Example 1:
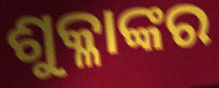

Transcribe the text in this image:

ଶୁକ୍ଳାଙ୍କର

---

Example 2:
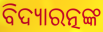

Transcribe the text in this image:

ବିଦ୍ୟାରତ୍ନଙ୍କ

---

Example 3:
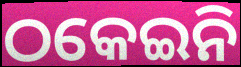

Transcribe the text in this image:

ଠକେଇନି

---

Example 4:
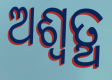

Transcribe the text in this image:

ଅଶ୍ଵତ୍ଥ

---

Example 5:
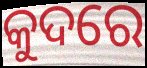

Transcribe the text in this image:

କୁଦରେ